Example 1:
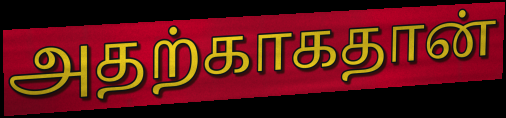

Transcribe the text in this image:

அதற்காகதான்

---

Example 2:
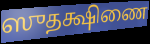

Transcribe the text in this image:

ஸுதக்ஷிணை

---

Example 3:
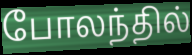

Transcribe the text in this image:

போலந்தில்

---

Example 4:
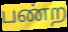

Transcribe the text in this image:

பண்ற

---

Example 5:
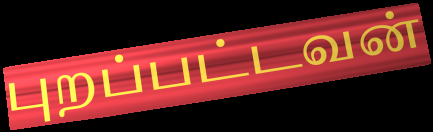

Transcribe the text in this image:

புறப்பட்டவன்